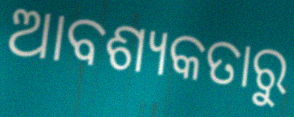
ଆବଶ୍ୟକତାରୁ